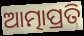
ଆତ୍ମାପ୍ରତି